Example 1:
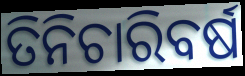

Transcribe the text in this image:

ତିନିଚାରିବର୍ଷ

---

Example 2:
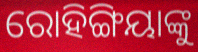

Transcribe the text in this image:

ରୋହିଙ୍ଗିୟାଙ୍କୁ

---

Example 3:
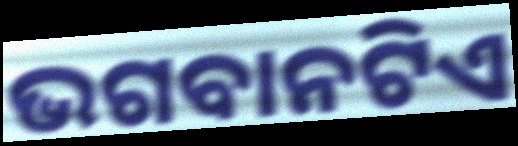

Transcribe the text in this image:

ଭଗବାନଟିଏ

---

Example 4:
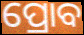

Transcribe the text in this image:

ପ୍ରୋବ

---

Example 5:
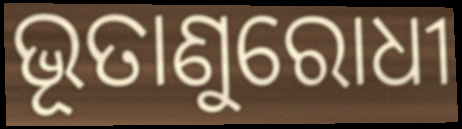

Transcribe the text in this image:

ଭୂତାଣୁରୋଧୀ